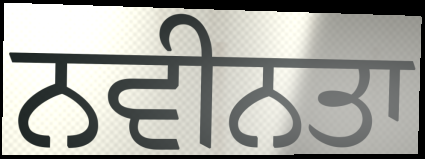
ਨਵੀਨਤਾ